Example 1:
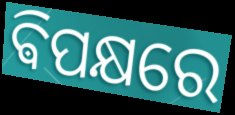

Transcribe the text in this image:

ଵିପକ୍ଷରେ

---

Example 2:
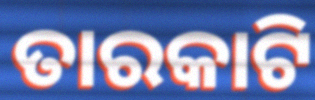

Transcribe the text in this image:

ତାରକାଟି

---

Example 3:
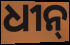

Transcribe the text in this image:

ଧୀନ୍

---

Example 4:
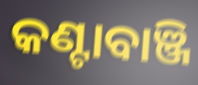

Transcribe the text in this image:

କଣ୍ଟାବାଞ୍ଜି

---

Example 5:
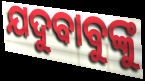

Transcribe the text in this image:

ଯଦୁବାବୁଙ୍କୁ